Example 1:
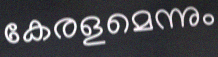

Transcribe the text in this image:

കേരളമെന്നും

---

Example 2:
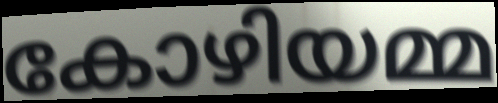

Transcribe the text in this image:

കോഴിയമ്മ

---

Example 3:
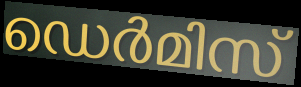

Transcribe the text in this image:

ഡെർമിസ്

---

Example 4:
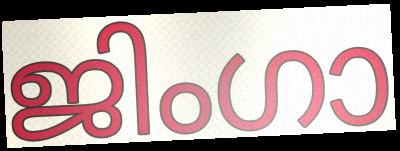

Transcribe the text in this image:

ജിംഗാ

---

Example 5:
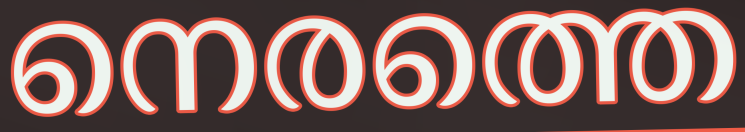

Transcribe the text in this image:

നെരത്തെ